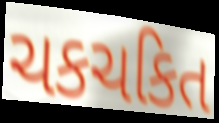
ચકચકિત